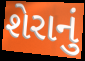
શેરાનું